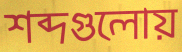
শব্দগুলোয়